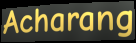
Acharang